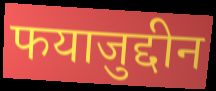
फयाजुद्दीन